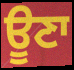
ਊਣਾ